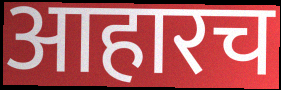
आहारच